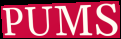
PUMS